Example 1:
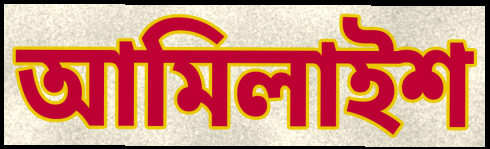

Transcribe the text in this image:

আমিলাইশ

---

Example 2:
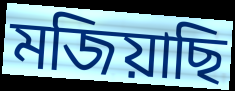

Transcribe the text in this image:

মজিয়াছি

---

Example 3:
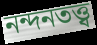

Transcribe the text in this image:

নন্দনতত্ত্ব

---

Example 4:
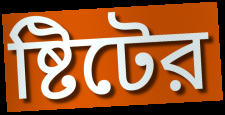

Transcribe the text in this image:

ষ্টিটের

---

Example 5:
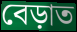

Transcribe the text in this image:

বেড়াত